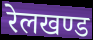
रेलखण्ड